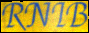
RNIB